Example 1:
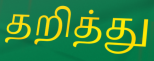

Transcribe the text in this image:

தறித்து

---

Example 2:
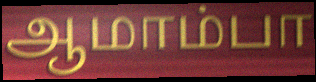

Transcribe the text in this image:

ஆமாம்பா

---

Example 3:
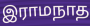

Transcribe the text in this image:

இராமநாத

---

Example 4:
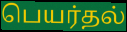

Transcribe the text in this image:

பெயர்தல்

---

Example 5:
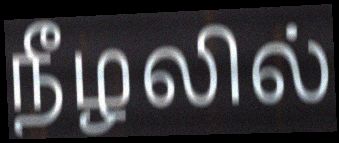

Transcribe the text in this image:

நீழலில்